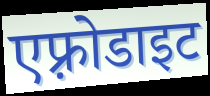
एफ़्रोडाइट